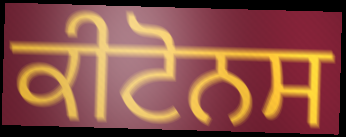
ਕੀਟੋਨਸ